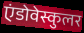
एंडोवेस्कुलर